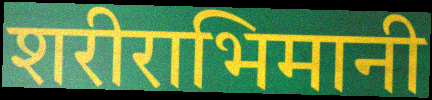
शरीराभिमानी